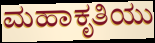
ಮಹಾಕೃತಿಯು